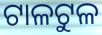
ଟାଳଟୁଳ